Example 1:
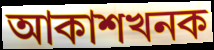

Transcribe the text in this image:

আকাশখনক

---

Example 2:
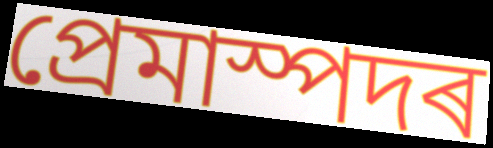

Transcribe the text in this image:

প্ৰেমাস্পদৰ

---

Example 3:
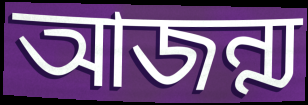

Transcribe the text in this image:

আজন্ম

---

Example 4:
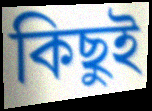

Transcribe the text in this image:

কিছুই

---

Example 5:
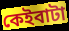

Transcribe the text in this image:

কেইবাটা